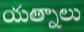
యత్నాలు